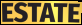
ESTATE